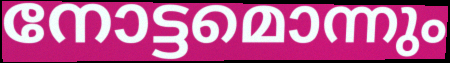
നോട്ടമൊന്നും